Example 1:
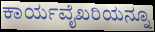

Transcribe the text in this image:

ಕಾರ್ಯವೈಖರಿಯನ್ನೂ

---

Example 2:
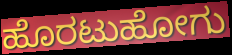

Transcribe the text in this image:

ಹೊರಟುಹೋಗು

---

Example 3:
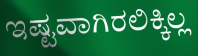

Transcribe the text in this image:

ಇಷ್ಟವಾಗಿರಲಿಕ್ಕಿಲ್ಲ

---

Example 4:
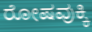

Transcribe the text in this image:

ರೋಷವುಕ್ಕಿ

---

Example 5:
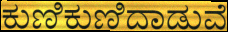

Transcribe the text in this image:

ಕುಣಿಕುಣಿದಾಡುವೆ